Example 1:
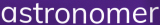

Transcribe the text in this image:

astronomer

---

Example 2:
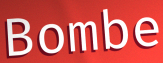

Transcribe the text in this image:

Bombe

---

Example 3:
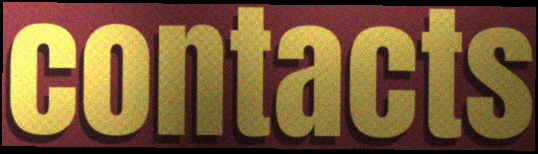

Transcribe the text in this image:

contacts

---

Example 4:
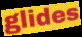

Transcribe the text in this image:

glides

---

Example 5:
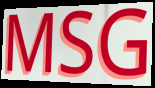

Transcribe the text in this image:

MSG